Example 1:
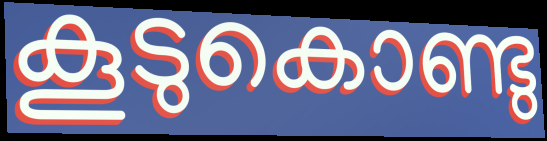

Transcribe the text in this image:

കൂടുകൊണ്ടു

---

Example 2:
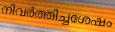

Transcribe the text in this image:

നിവർത്തിച്ചശേഷം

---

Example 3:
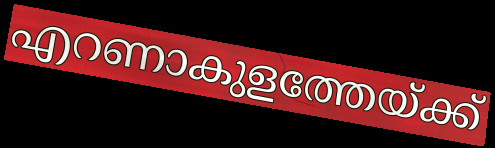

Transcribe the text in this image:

എറണാകുളത്തേയ്ക്ക്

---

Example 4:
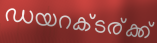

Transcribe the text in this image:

ഡയറക്ടര്ക്ക്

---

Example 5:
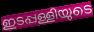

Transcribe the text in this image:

ഇടപ്പള്ളിയുടെ